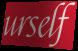
urself